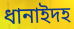
ধানাইদহ